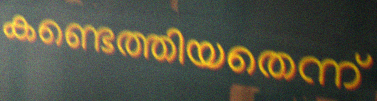
കണ്ടെത്തിയതെന്ന്